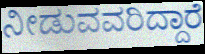
ನೀಡುವವರಿದ್ದಾರೆ